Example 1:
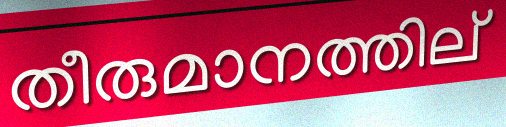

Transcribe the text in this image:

തീരുമാനത്തില്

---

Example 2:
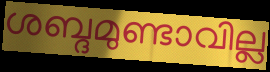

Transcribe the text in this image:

ശബ്ദമുണ്ടാവില്ല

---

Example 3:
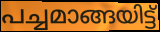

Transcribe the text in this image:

പച്ചമാങ്ങയിട്ട്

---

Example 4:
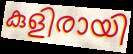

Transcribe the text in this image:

കുളിരായി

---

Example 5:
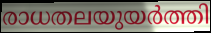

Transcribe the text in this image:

രാധതലയുയർത്തി